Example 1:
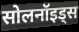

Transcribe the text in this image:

सोलनॉइड्स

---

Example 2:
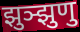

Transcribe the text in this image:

झुञ्झुणु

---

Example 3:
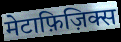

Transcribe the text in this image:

मेटाफ़िज़िक्स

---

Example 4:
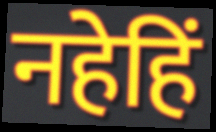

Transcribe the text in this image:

नहेहिं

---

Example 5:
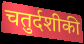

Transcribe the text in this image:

चतुर्दशीकी